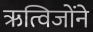
ऋत्विजोंने